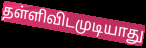
தள்ளிவிடமுடியாது